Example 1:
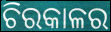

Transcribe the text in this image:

ଚିରକାଳର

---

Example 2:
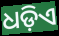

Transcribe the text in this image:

ଧଡ଼ିଏ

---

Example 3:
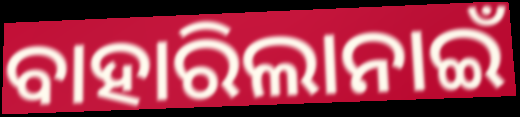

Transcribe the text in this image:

ବାହାରିଲାନାଇଁ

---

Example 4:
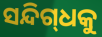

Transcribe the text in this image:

ସନ୍ଦିଗ୍‌ଧକୁ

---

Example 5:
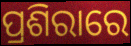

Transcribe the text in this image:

ପ୍ରଶିରାରେ